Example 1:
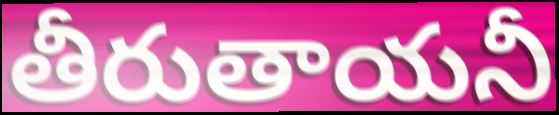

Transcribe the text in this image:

తీరుతాయనీ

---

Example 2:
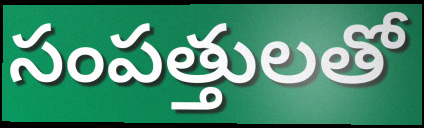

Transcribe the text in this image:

సంపత్తులతో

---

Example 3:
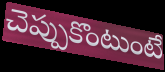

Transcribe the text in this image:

చెప్పుకొంటుంటే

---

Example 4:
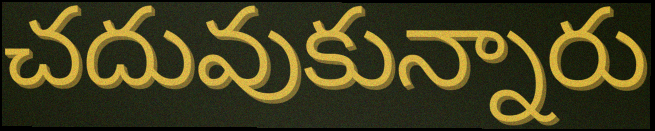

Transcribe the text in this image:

చదువుకున్నారు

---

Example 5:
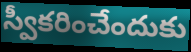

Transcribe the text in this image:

స్వీకరించేందుకు